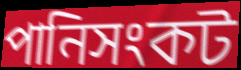
পানিসংকট